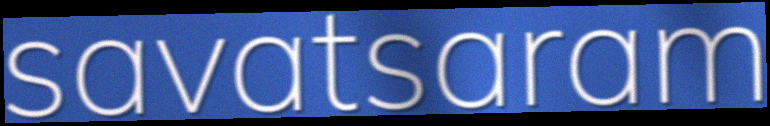
savatsaram